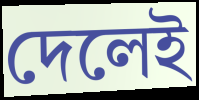
দেলেই